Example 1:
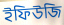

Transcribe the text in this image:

ইফিউজি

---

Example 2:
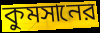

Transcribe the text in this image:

কুমসানের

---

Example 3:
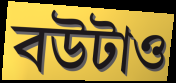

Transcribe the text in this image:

বউটাও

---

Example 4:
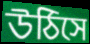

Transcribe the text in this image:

উঠিসে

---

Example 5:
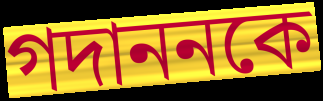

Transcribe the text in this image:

গদাননকে